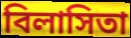
বিলাসিতা